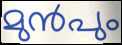
മുൻപും